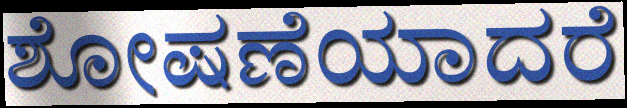
ಶೋಷಣೆಯಾದರೆ